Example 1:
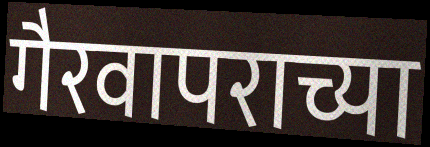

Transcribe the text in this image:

गैरवापराच्या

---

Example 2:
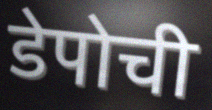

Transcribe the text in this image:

डेपोची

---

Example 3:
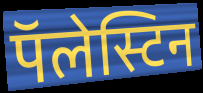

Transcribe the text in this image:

पॅलेस्टिन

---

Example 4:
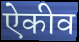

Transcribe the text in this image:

ऐकीव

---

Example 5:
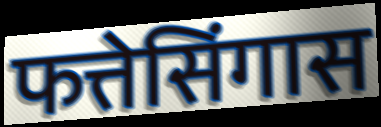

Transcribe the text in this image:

फत्तेसिंगास